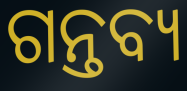
ଗନ୍ତବ୍ୟ